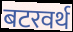
बटरवर्थ